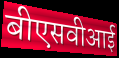
बीएसवीआई